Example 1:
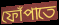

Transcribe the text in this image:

ফোঁপাতে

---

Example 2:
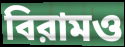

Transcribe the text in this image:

বিরামও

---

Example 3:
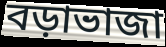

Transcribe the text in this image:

বড়াভাজা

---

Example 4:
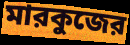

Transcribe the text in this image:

মারকুজের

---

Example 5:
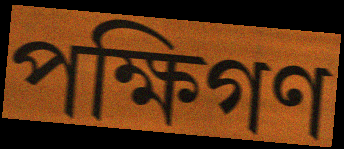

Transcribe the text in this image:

পক্ষিগণ